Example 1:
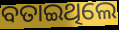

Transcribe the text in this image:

ବତାଇଥିଲେ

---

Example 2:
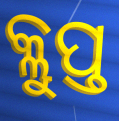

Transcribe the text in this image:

କ୍ଲୁପ୍ତ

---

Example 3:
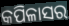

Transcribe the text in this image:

କପିଳାସର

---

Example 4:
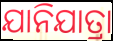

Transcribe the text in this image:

ଯାନିଯାତ୍ରା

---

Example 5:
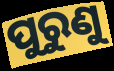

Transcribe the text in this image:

ପୁରୁଣୁ